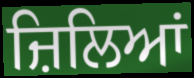
ਜ਼ਿਲਿਆਂ